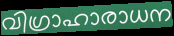
വിഗ്രാഹാരാധന